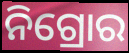
ନିଗ୍ରୋର